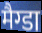
मैग्डा